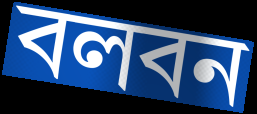
বলবন